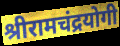
श्रीरामचंद्रयोगी